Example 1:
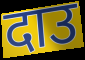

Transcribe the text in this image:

दाउ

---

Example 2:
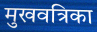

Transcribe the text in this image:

मुखवत्रिका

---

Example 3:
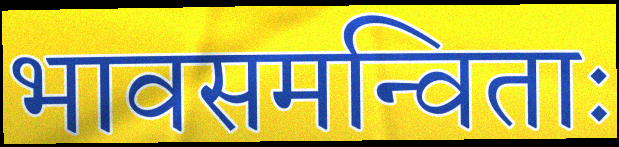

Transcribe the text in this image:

भावसमन्विताः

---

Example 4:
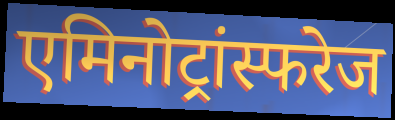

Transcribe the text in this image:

एमिनोट्रांस्फरेज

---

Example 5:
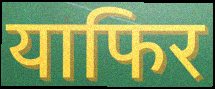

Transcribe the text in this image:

याफिर